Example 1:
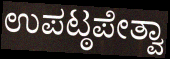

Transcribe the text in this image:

ಉಪಟ್ಠಪೇತ್ವಾ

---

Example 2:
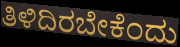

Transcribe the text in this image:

ತಿಳಿದಿರಬೇಕೆಂದು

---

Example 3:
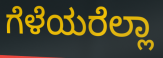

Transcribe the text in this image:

ಗೆಳೆಯರೆಲ್ಲಾ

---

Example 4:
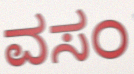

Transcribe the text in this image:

ವಸಂ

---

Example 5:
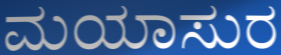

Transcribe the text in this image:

ಮಯಾಸುರ